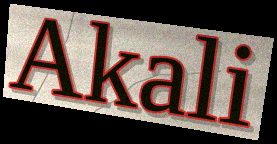
Akali